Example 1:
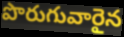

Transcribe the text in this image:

పొరుగువారైన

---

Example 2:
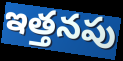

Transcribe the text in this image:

ఇత్తనపు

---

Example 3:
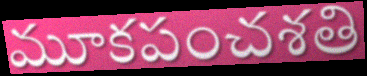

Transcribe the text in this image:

మూకపంచశతి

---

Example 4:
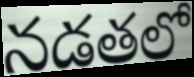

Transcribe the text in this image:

నడతలో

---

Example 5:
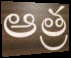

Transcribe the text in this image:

ఆత్ర